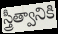
స్త్రీత్వానికి